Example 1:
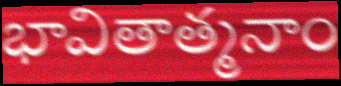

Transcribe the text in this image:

భావితాత్మనాం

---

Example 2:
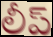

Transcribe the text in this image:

లీప్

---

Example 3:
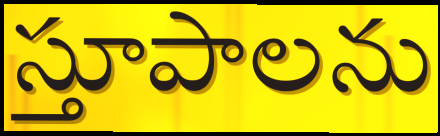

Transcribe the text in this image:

స్తూపాలను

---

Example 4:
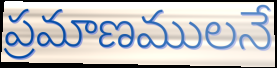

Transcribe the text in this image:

ప్రమాణములనే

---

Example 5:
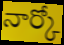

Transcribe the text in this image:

నార్కో